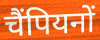
चैंपियनों